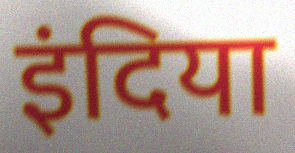
इंदिया